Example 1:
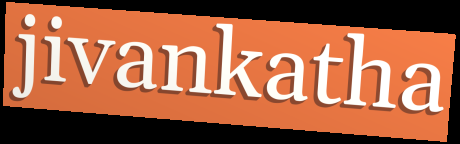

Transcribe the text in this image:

jivankatha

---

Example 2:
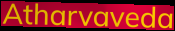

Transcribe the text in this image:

Atharvaveda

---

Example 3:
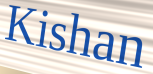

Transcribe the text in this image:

Kishan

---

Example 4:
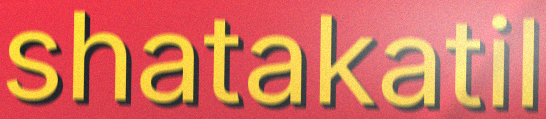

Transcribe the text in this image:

shatakatil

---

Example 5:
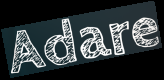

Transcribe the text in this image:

Adare